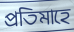
প্ৰতিমাহে